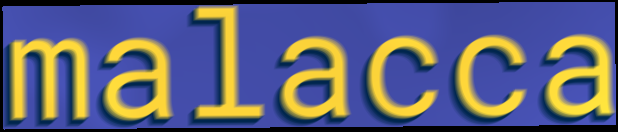
malacca